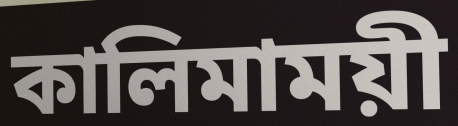
কালিমাময়ী